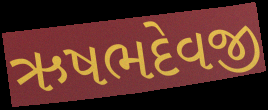
ઋષભદેવજી